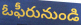
ఓఫీరునుండి